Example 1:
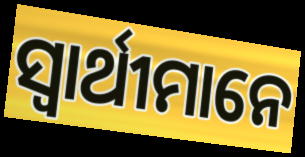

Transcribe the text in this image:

ସ୍ଵାର୍ଥୀମାନେ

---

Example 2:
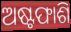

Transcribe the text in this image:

ଅଷ୍ଟଫାଶି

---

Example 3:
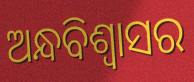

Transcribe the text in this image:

ଅନ୍ଧବିଶ୍ୱାସର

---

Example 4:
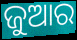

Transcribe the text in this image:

ଜୁଆର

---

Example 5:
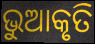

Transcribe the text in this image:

ଭୁଆକୃତି